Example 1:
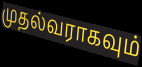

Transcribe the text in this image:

முதல்வராகவும்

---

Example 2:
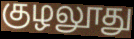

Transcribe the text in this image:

குழலூது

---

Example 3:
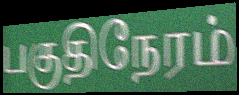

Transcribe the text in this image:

பகுதிநேரம்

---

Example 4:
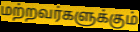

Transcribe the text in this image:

மற்றவர்களுக்கும்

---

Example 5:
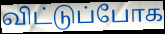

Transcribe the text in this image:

விட்டுப்போக